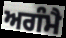
ਅਗੰਮੈ